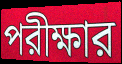
পরীক্ষার